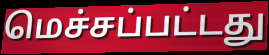
மெச்சப்பட்டது